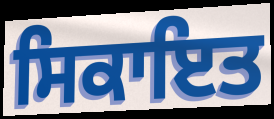
ਸਿਕਾਇਤ